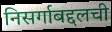
निसर्गाबद्दलची